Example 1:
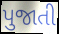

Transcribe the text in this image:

પુજાતી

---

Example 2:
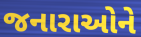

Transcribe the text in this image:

જનારાઓને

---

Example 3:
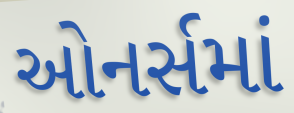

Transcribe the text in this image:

ઓનર્સમાં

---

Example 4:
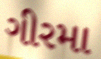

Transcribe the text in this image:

ગીરમા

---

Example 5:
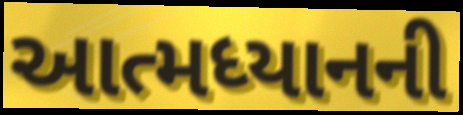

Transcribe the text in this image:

આત્મધ્યાનની